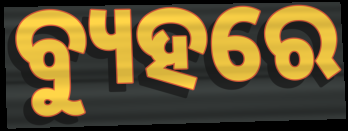
ବ୍ୟୁହରେ